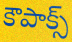
కౌపాక్స్